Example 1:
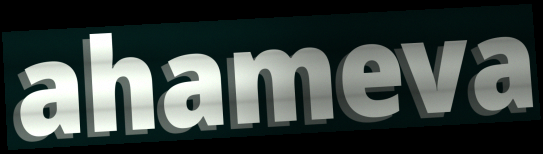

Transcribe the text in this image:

ahameva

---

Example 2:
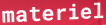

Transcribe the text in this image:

materiel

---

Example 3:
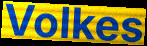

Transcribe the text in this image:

Volkes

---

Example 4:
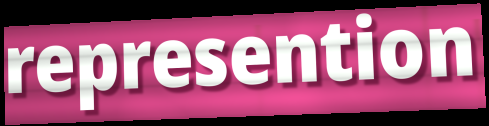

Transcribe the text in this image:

represention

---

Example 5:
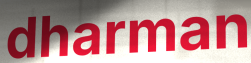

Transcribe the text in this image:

dharman